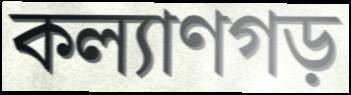
কল্যাণগড়